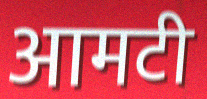
आमटी